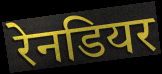
रेनडियर